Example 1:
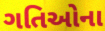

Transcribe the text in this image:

ગતિઓના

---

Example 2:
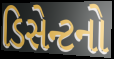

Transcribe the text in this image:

ડિસેન્ટનો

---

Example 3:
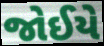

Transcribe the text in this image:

જોઈયે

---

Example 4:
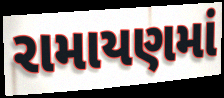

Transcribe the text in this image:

રામાયણમાં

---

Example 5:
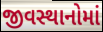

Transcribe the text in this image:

જીવસ્થાનોમાં